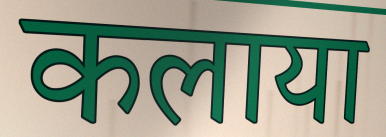
कलाया